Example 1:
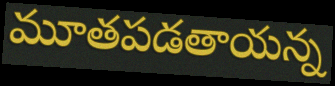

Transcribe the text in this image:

మూతపడతాయన్న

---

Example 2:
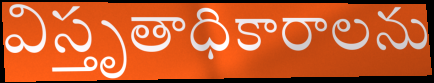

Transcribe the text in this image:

విస్తృతాధికారాలను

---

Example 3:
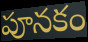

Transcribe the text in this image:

పూనకం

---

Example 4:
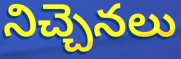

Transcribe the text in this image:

నిచ్చెనలు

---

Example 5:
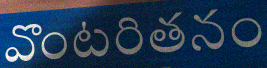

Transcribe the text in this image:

వొంటరితనం